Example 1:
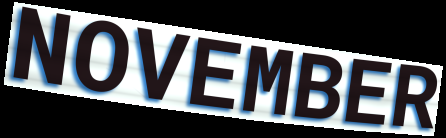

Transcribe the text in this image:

NOVEMBER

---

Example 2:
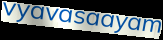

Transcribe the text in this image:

vyavasaayam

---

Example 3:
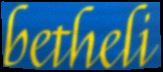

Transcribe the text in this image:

betheli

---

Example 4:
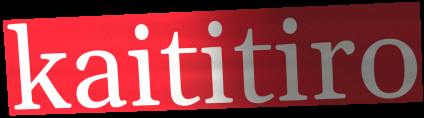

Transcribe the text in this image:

kaititiro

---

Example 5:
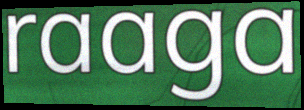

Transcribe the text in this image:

raaga